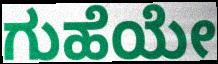
ಗುಹೆಯೇ